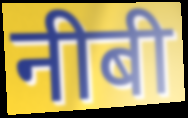
नीबी